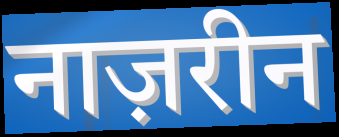
नाज़रीन